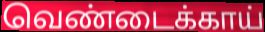
வெண்டைக்காய்